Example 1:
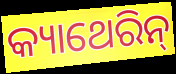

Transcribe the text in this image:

କ୍ୟାଥେରିନ୍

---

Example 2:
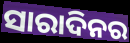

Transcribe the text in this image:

ସାରାଦିନର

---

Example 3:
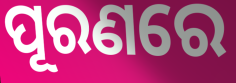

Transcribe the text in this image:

ପୂରଣରେ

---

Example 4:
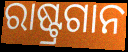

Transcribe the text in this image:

ରାଷ୍ଟ୍ରଗାନ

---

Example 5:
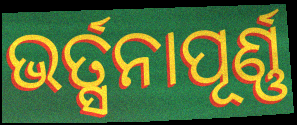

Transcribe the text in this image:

ଭର୍ତ୍ସନାପୂର୍ଣ୍ଣ